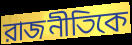
রাজনীতিকে